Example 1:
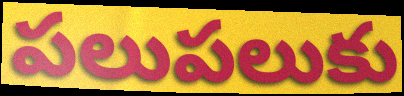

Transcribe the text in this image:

పలుపలుకు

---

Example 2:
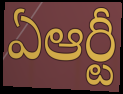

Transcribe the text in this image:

ఏఆర్టీ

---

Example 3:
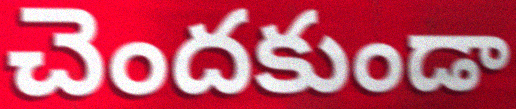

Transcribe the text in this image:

చెందకుండా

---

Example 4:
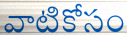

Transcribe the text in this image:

వాటికోసం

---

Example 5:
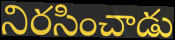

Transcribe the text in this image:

నిరసించాడు